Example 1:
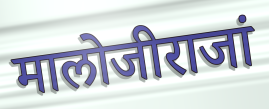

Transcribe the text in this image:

मालोजीराजां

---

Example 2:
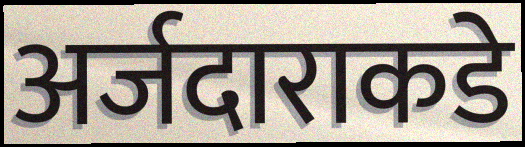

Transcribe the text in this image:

अर्जदाराकडे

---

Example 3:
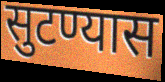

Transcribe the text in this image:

सुटण्यास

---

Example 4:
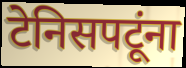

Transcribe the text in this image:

टेनिसपटूंना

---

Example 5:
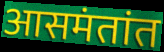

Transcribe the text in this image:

आसमंतांत